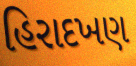
હિરાદખણ